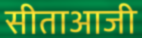
सीताआजी